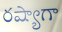
రష్యాగా